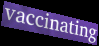
vaccinating